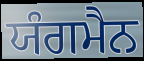
ਯੰਗਮੈਨ